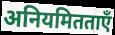
अनियमितताएँ